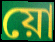
য়ো